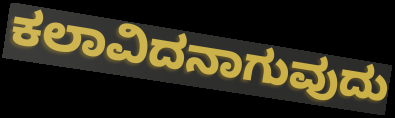
ಕಲಾವಿದನಾಗುವುದು